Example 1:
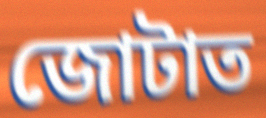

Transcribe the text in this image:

জোটাত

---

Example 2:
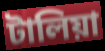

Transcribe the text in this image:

টালিয়া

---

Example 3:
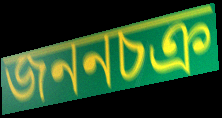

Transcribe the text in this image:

জননচক্র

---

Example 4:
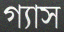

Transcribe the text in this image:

গ্যাস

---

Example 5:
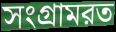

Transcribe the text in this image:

সংগ্রামরত